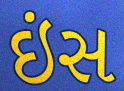
ઇંસ